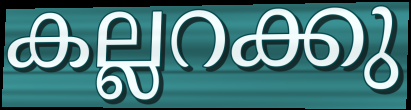
കല്ലറക്കു